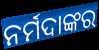
ନର୍ମଦାଙ୍କର